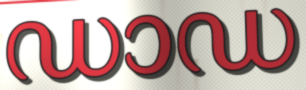
ഡാഡ